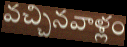
వచ్చినవాళ్లం